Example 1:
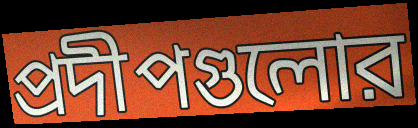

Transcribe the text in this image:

প্রদীপগুলোর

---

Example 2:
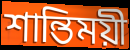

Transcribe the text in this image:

শান্তিময়ী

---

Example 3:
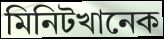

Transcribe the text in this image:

মিনিটখানেক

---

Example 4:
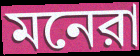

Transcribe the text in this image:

মনেরা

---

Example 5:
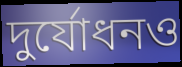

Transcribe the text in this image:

দুর্যোধনও